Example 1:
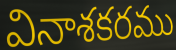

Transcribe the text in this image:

వినాశకరము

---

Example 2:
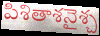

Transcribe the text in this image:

పిశితాశనైశ్చ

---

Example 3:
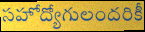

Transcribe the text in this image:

సహోద్యోగులందరికీ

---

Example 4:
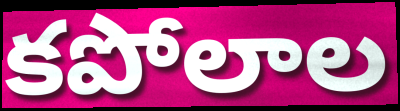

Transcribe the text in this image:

కపోలాల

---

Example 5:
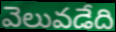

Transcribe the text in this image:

వెలువడేది